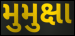
મુમુક્ષા